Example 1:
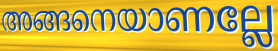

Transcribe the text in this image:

അങ്ങനെയാണല്ലേ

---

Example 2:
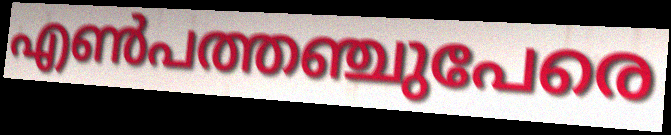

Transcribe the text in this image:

എൺപത്തഞ്ചുപേരെ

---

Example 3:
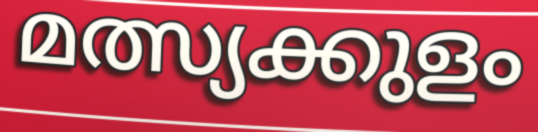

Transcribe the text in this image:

മത്സ്യക്കുളം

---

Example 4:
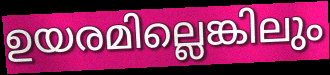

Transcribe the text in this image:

ഉയരമില്ലെങ്കിലും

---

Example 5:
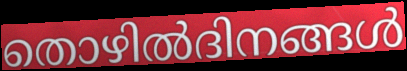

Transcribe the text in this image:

തൊഴിൽദിനങ്ങൾ